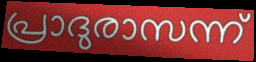
പ്രാദുരാസന്ന്